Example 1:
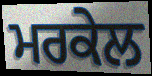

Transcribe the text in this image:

ਮਰਕੇਲ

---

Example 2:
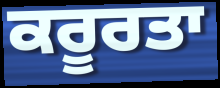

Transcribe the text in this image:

ਕਰੂਰਤਾ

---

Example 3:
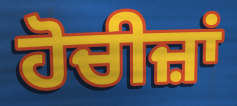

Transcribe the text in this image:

ਹੋਚੀਜ਼ਾਂ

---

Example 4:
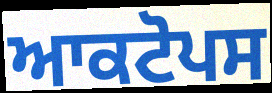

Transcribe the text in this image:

ਆਕਟੋਪਸ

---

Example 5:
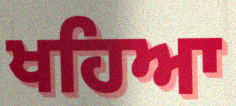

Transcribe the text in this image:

ਖਹਿਆ